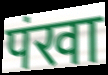
पंखा